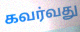
கவர்வது